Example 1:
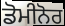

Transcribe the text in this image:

ਡੋਮੀਨੋਰ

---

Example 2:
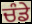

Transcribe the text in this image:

ਚੰਡੇ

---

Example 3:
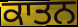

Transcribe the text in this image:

ਕਾਤਨ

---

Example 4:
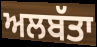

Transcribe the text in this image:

ਅਲਬੱਤਾ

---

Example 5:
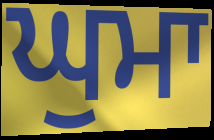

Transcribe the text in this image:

ਘੁਮਾ